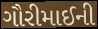
ગૌરીમાઈની